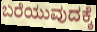
ಬರೆಯುವುದಕ್ಕೆ